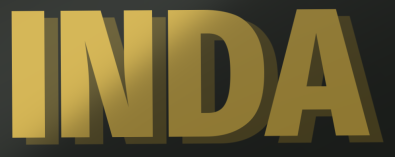
INDA